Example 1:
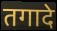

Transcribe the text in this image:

तगादे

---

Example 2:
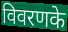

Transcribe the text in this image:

विवरणके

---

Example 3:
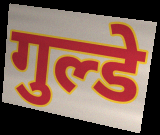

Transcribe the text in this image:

गुल्डे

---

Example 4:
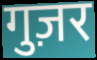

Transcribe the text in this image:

गुज़र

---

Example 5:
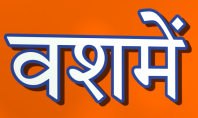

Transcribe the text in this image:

वशमें